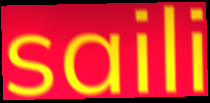
saili